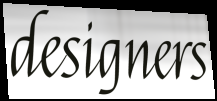
designers